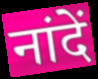
नांदें